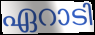
ഏറാടി